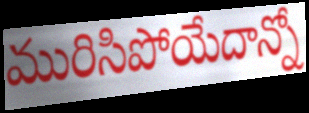
మురిసిపోయేదాన్నో